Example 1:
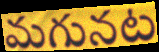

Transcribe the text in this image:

మగునట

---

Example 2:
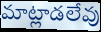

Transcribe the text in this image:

మాట్లాడలేవు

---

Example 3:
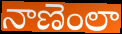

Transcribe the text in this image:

నాణెంలా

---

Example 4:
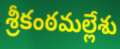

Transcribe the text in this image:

శ్రీకంఠమల్లేశు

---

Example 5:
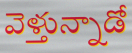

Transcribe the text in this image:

వెళ్తున్నాడో